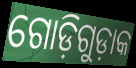
ଗୋଡ଼ିଗୁଡ଼ାକ